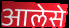
आलेसे